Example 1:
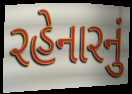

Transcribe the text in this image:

રહેનારનું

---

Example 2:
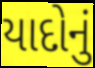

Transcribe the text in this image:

યાદોનું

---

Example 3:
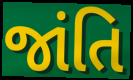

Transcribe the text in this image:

જાંતિ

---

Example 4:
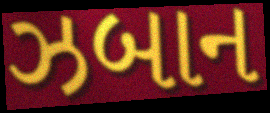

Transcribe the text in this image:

ઝબાન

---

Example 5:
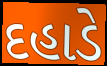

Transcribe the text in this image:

દહાડે